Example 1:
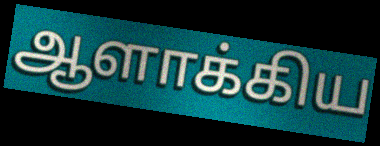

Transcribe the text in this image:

ஆளாக்கிய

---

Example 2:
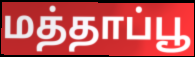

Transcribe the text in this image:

மத்தாப்பூ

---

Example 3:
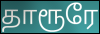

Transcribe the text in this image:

தாரூரே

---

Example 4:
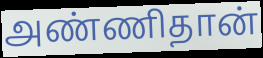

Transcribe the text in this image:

அண்ணிதான்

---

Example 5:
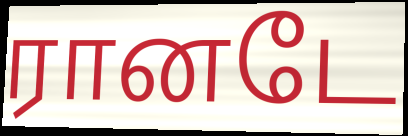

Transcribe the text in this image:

ரானடே